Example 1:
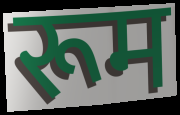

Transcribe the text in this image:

रूम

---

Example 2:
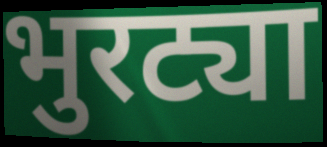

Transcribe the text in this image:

भुरट्या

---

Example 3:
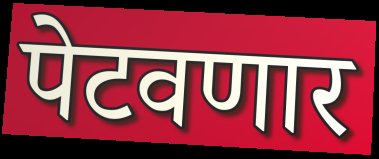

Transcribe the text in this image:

पेटवणार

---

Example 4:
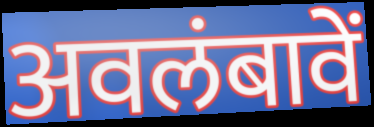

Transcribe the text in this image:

अवलंबावें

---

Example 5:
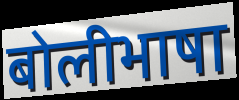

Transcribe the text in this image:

बोलीभाषा